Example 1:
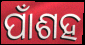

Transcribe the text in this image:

ପାଁଶହ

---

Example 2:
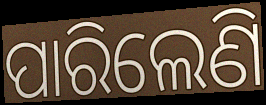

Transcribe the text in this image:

ପାରିଲେଣି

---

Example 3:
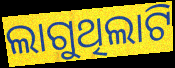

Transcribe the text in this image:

ଲାଗୁଥିଲାଟି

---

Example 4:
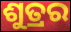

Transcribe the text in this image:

ଶୁତ୍ରର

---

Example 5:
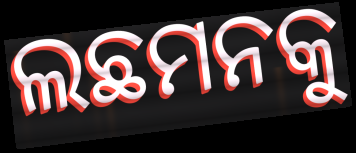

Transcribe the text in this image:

ଲଛମନକୁ